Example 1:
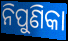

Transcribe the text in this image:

ନିପୁଣିକା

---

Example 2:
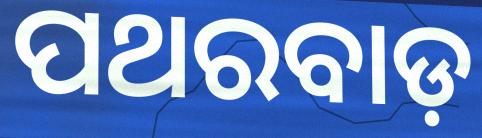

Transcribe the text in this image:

ପଥରବାଡ଼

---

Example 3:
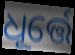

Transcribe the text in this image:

ଧୂର୍ତ୍ତେ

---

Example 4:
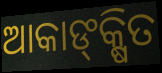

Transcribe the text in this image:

ଆକାଙ୍‍କ୍ଷିତ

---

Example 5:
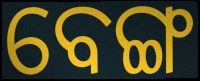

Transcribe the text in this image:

ବେଙ୍ଗ